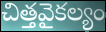
చిత్తవైకల్యం